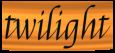
twilight